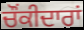
ਚੌਂਕੀਦਾਰਾਂ